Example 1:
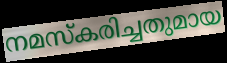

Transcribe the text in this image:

നമസ്കരിച്ചതുമായ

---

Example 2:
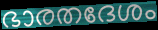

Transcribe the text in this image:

ഭാരതദേശം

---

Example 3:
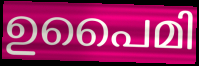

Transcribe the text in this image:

ഉപൈമി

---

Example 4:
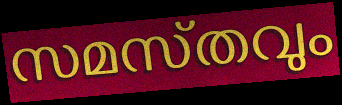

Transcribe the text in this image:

സമസ്‌തവും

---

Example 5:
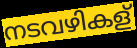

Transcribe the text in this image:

നടവഴികള്